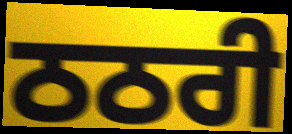
ਠਠਰੀ